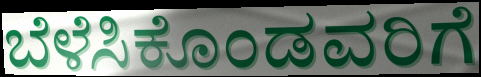
ಬೆಳೆಸಿಕೊಂಡವರಿಗೆ